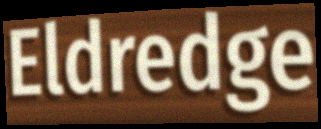
Eldredge